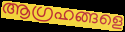
ആഗ്രഹങ്ങളെ